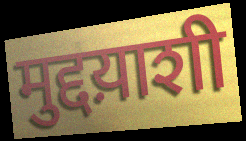
मुद्दय़ाशी